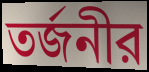
তর্জনীর